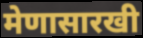
मेणासारखी